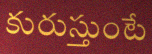
కురుస్తుంటే